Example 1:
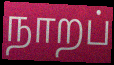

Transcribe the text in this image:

நாறப்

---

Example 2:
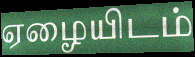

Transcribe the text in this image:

ஏழையிடம்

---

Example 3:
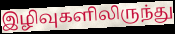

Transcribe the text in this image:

இழிவுகளிலிருந்து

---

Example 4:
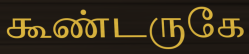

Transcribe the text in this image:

கூண்டருகே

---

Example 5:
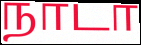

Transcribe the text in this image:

நாடா